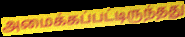
அமைக்கப்பட்டிருந்தது